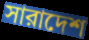
সারাদেশ